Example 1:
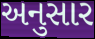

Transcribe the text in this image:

અનુસાર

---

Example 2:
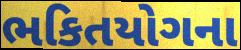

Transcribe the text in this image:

ભકિતયોગના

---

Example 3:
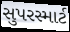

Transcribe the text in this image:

સુપરસ્માર્ટ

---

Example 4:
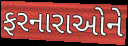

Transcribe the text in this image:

ફરનારાઓને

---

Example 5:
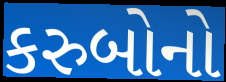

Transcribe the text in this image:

કરુબોનો